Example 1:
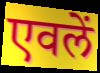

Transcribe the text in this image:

एवलें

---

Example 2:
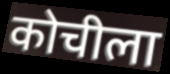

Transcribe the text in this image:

कोचीला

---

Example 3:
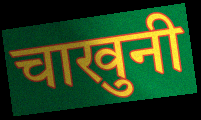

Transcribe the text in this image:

चाखुनी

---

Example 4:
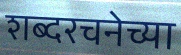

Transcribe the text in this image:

शब्दरचनेच्या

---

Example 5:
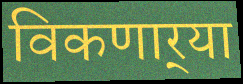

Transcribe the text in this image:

विकणार्या